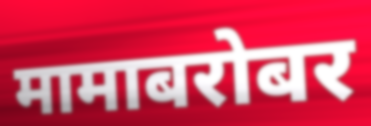
मामाबरोबर